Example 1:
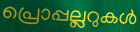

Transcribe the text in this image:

പ്രൊപ്പല്ലറുകൾ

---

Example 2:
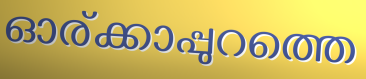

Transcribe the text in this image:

ഓര്ക്കാപ്പുറത്തെ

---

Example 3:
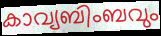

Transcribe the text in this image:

കാവ്യബിംബവും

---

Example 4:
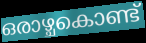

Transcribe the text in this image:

ഒരാഴ്ചകൊണ്ട്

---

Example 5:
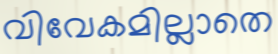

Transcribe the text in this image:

വിവേകമില്ലാതെ